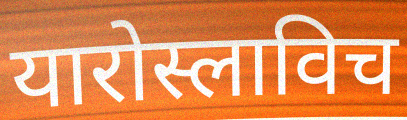
यारोस्लाविच